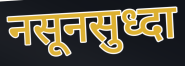
नसूनसुध्दा